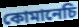
কোমানেচি